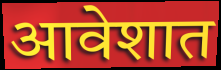
आवेशात